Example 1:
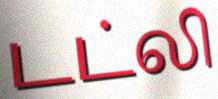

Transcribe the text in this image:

டட்லி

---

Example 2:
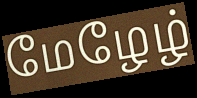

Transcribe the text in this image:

மேழேழ்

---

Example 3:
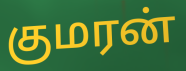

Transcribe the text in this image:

குமரன்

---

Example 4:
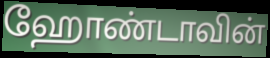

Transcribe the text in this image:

ஹோண்டாவின்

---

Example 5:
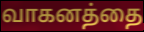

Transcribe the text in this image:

வாகனத்தை